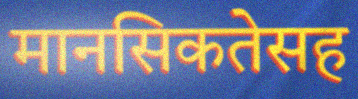
मानसिकतेसह